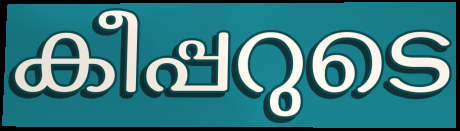
കീപ്പറുടെ